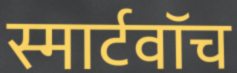
स्मार्टवॉच